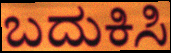
ಬದುಕಿಸಿ